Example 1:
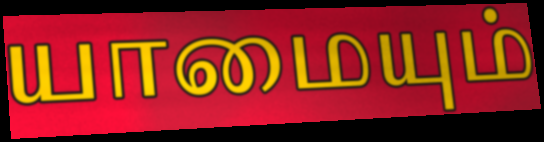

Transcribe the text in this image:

யாமையும்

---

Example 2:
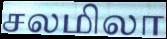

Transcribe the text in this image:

சலமிலா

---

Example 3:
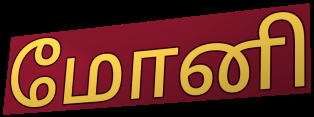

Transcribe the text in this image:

மோனி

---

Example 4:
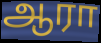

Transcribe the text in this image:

ஆரா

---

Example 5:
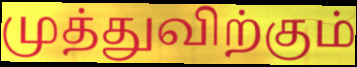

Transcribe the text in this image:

முத்துவிற்கும்